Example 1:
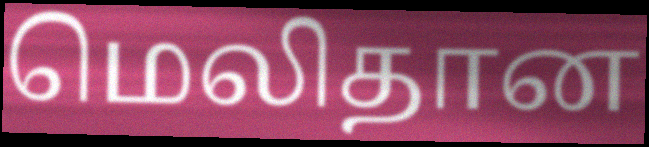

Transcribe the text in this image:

மெலிதான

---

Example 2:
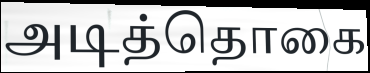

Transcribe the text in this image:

அடித்தொகை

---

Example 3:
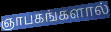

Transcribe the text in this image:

ஞாபகங்களால்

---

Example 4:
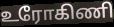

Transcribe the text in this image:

உரோகிணி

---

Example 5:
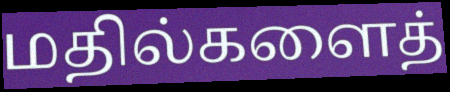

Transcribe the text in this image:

மதில்களைத்